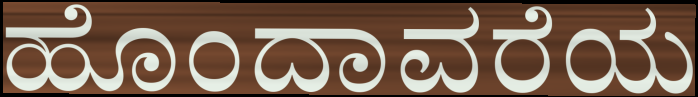
ಹೊಂದಾವರೆಯ